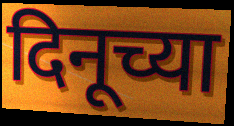
दिनूच्या